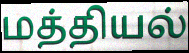
மத்தியல்